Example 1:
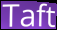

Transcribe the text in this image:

Taft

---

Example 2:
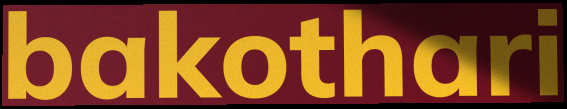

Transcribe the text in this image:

bakothari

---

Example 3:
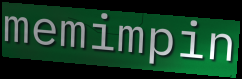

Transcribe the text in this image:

memimpin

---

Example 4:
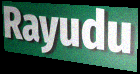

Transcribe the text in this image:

Rayudu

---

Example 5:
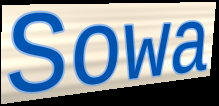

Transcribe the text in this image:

Sowa